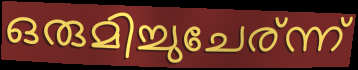
ഒരുമിച്ചുചേര്ന്ന്